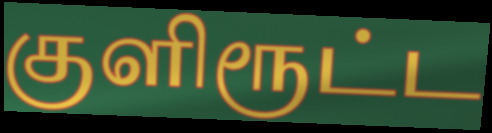
குளிரூட்ட